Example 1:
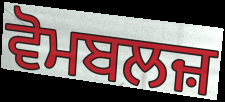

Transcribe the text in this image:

ਵੋਮਬਲਜ਼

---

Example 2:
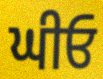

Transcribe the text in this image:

ਘੀਓ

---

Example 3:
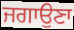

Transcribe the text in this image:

ਜਗਾਉਣਾ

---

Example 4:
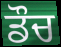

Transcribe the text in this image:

ਡੌਚ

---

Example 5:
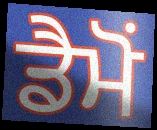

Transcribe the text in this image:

ਡੈਮੋਂ